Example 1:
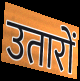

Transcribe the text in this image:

उतारों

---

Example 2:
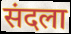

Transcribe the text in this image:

संदला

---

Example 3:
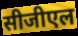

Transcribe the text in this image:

सीजीएल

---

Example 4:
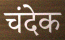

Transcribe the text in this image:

चंदेक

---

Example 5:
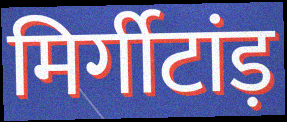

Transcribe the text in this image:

मिर्गीटांड़